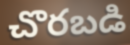
చొరబడి